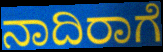
ನಾದಿರಾಗೆ